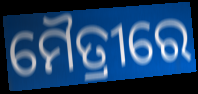
ମୈତ୍ରୀରେ